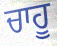
ਚਾਹੂ